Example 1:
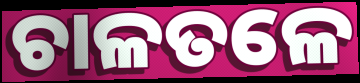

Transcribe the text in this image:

ଚାଳତଳେ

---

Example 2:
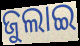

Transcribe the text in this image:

ଜୁଲାଇ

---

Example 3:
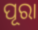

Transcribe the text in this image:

ପୂରା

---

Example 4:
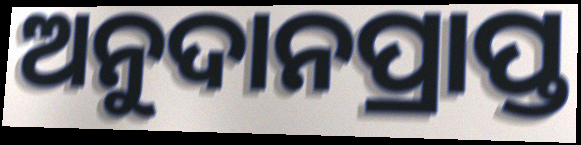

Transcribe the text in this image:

ଅନୁଦାନପ୍ରାପ୍ତ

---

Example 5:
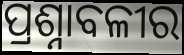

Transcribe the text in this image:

ପ୍ରଶ୍ନାବଳୀର